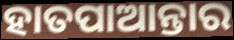
ହାତପାଆନ୍ତାର